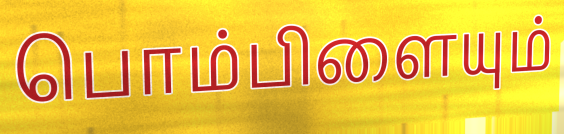
பொம்பிளையும்